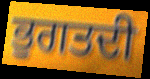
ਭੁਗਤਦੀ